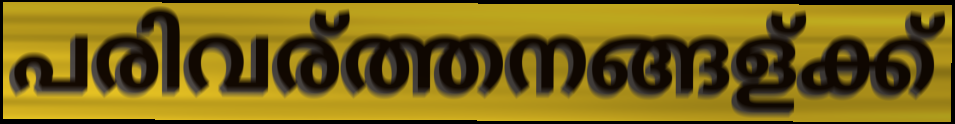
പരിവര്ത്തനങ്ങള്ക്ക്